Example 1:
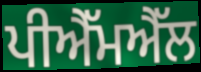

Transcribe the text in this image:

ਪੀਐੱਮਐੱਲ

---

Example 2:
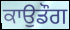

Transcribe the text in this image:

ਕਾਉਡੌਗ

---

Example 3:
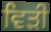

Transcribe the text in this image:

ਵਿੜੀ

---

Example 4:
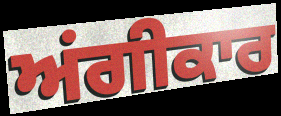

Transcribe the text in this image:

ਅਂਗੀਕਾਰ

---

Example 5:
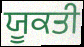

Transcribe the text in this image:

ਯੂਕਤੀ